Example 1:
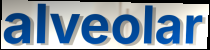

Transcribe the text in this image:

alveolar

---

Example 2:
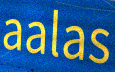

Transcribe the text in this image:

aalas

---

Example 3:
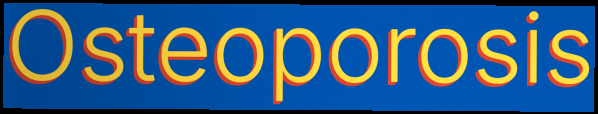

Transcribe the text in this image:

Osteoporosis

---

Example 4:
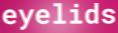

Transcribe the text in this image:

eyelids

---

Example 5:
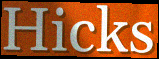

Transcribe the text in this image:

Hicks